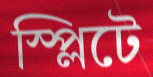
স্প্লিটে